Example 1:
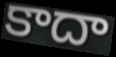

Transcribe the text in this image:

కాదా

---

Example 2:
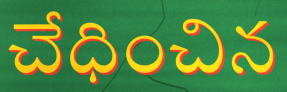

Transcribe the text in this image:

చేధించిన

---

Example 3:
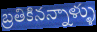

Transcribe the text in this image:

బ్రతికినన్నాళ్ళు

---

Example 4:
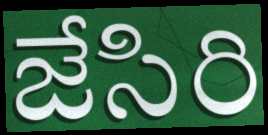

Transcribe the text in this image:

జేసిరి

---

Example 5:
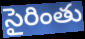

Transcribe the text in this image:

సైరింతు